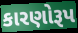
કારણોરૂપ